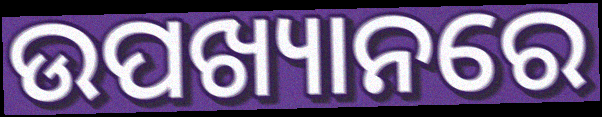
ଉପଖ୍ୟାନରେ